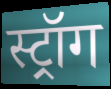
स्ट्रॉग